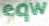
eqw